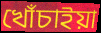
খোঁচাইয়া